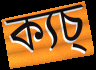
ক্যচ্